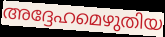
അദ്ദേഹമെഴുതിയ